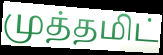
முத்தமிட்